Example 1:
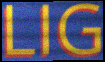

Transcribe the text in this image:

LIG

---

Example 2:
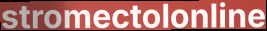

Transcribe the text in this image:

stromectolonline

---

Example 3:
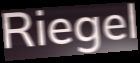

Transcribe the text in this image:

Riegel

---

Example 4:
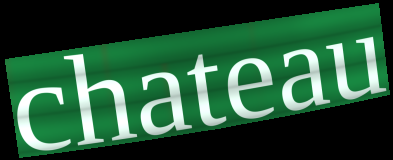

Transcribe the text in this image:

chateau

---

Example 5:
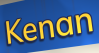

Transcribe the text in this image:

Kenan